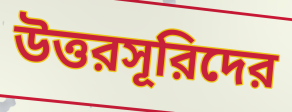
উত্তরসূরিদের